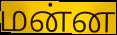
மன்ன